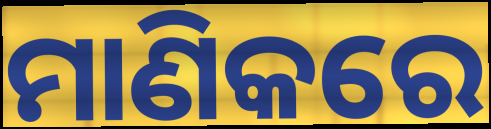
ମାଣିକରେ